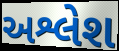
અશ્લેશ